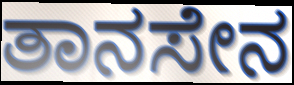
ತಾನಸೇನ